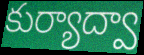
కుర్యాద్వా